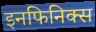
इनफिनिक्स